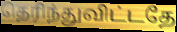
தெரிந்துவிட்டதே